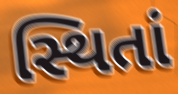
સ્થિતાં